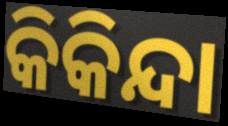
କିକିନ୍ଦା